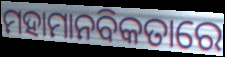
ମହାମାନବିକତାରେ